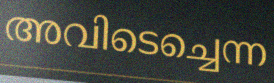
അവിടെച്ചെന്ന